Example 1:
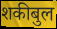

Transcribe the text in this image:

शकीबुल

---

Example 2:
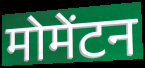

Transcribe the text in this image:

मोमेंटन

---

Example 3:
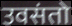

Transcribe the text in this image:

उवसंतो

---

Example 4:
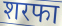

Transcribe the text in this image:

शरफा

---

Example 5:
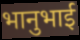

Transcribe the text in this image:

भानुभाई